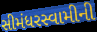
સીમંધરસ્વામીની